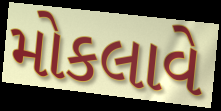
મોકલાવે